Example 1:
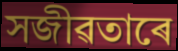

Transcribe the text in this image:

সজীৱতাৰে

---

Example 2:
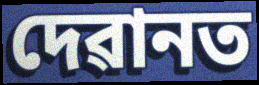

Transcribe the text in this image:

দেৱানত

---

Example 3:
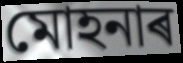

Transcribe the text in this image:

মোহনাৰ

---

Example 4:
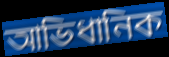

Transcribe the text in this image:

আভিধানিক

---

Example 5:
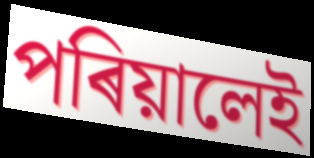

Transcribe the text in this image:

পৰিয়ালেই